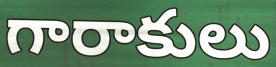
గారాకులు